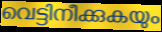
വെട്ടിനീക്കുകയും